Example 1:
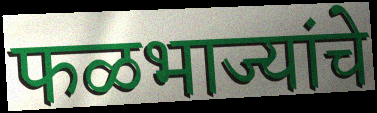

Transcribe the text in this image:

फळभाज्यांचे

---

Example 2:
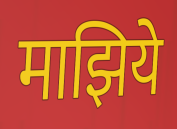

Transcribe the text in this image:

माझिये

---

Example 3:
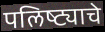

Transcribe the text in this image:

पलिष्ट्याचे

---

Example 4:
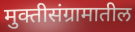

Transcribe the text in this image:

मुक्तीसंग्रामातील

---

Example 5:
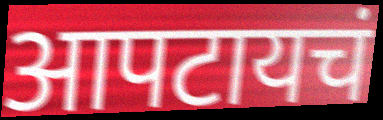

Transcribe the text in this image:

आपटायचं